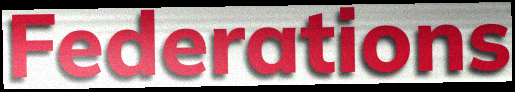
Federations